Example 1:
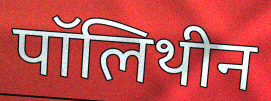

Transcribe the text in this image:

पॉलिथीन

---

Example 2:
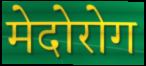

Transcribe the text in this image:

मेदोरोग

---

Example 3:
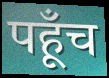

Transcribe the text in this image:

पहूँच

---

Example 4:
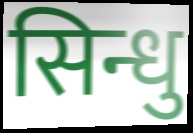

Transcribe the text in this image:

सिन्धु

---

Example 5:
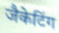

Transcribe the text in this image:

जैकेटिंग